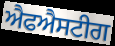
ਐਫਐਸਟੀਗ